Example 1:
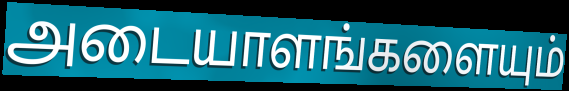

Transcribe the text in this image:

அடையாளங்களையும்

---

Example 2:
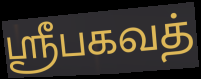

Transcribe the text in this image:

ஸ்ரீபகவத்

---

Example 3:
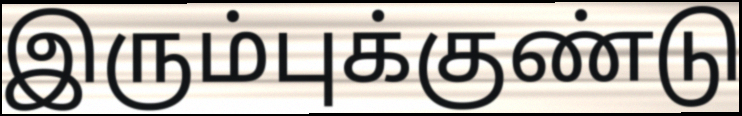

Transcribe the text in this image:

இரும்புக்குண்டு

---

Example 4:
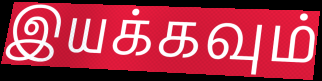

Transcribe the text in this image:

இயக்கவும்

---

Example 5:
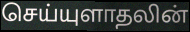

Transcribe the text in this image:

செய்யுளாதலின்